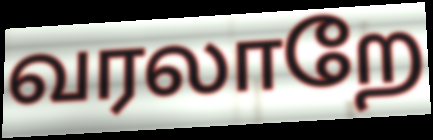
வரலாறே